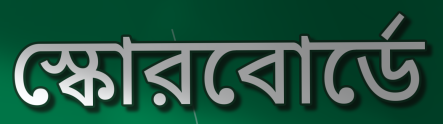
স্কোরবোর্ডে